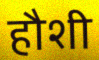
हौशी